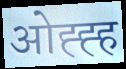
ओह्ह्ह